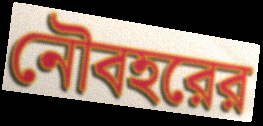
নৌবহরের